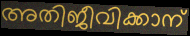
അതിജീവിക്കാന്